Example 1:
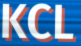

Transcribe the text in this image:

KCL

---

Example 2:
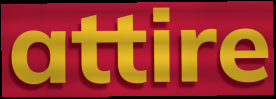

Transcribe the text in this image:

attire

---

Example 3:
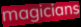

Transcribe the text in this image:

magicians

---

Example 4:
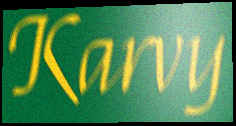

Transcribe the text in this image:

Karvy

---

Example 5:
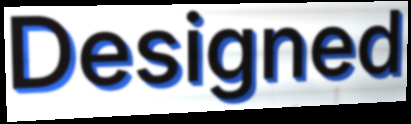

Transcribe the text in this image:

Designed